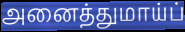
அனைத்துமாய்ப்